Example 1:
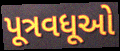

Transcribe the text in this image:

પૂત્રવધૂઓ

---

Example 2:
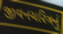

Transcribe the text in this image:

જીવનચરિત્રનું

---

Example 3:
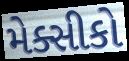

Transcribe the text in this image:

મેક્સીકો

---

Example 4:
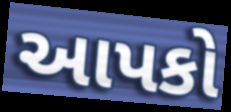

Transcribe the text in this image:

આપકો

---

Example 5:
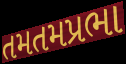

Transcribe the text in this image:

તમતમપ્રભા